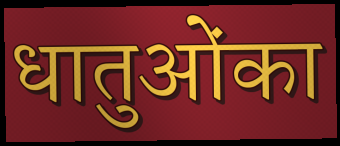
धातुओंका